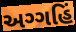
અગ્ગહિં